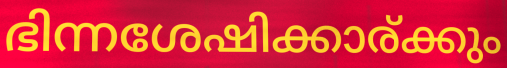
ഭിന്നശേഷിക്കാര്ക്കും